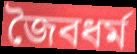
জৈবধর্ম